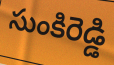
సుంకిరెడ్డి